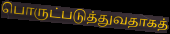
பொருட்படுத்துவதாகத்